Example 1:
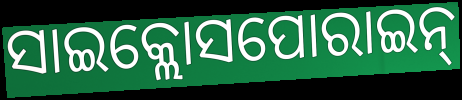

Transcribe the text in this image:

ସାଇକ୍ଲୋସପୋରାଇନ୍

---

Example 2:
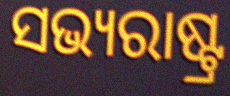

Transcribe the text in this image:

ସଭ୍ୟରାଷ୍ଟ୍ର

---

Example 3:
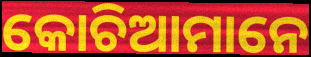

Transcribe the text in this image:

କୋଚିଆମାନେ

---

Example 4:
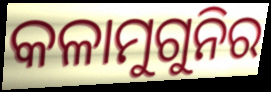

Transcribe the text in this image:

କଳାମୁଗୁନିର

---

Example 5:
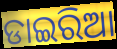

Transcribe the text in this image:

ଡାଇରିଆ